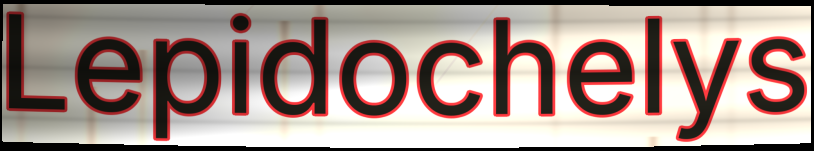
Lepidochelys